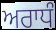
ਅਰਾਧੰ